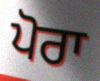
ਪੋਰਾ